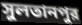
সুলতানপুর